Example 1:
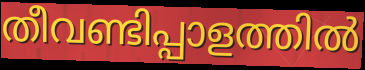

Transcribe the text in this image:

തീവണ്ടിപ്പാളത്തിൽ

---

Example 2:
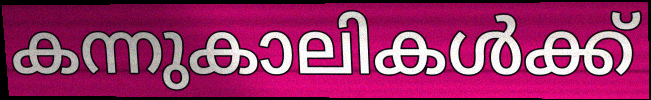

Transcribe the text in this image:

കന്നുകാലികൾക്ക്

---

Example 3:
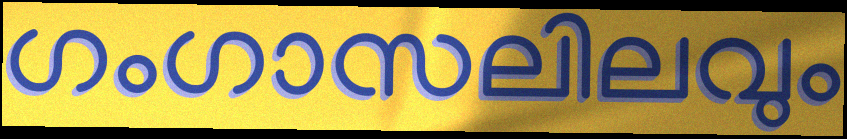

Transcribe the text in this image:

ഗംഗാസലിലവും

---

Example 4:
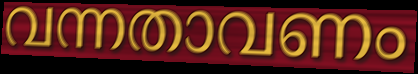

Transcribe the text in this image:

വന്നതാവണം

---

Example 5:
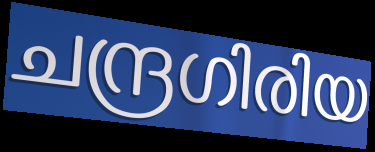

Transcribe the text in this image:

ചന്ദ്രഗിരിയ